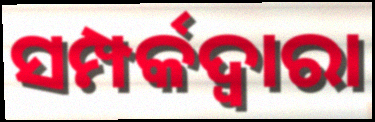
ସମ୍ପର୍କଦ୍ୱାରା